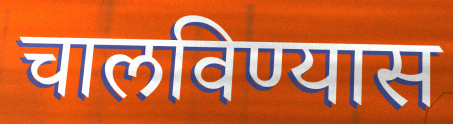
चालविण्यास